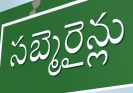
సబ్మెరైన్లు